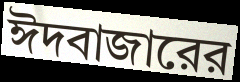
ঈদবাজারের